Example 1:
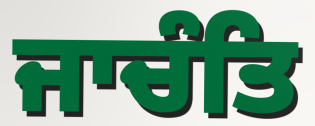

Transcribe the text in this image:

ਜਾਚੰਤਿ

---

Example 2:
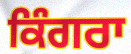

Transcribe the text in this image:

ਕਿੰਗਰਾ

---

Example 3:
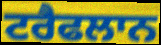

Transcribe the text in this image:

ਟਰੈਫਲਾਨ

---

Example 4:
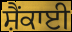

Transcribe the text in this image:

ਸ਼ੈਂਕਾਈ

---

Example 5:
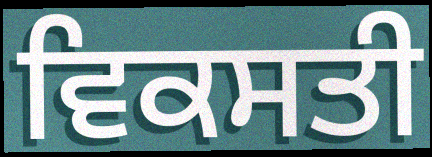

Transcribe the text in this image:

ਵਿਕਸਤੀ